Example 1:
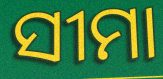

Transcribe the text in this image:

ସୀମା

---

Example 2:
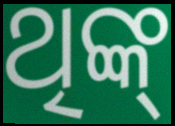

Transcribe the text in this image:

ଥିଙ୍କ୍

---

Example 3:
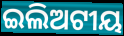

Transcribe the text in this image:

ଇଲିଅଟୀୟ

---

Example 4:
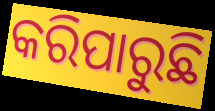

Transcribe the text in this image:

କରିପାରୁଛି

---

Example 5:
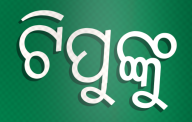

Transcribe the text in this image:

ଟିପୁଙ୍କୁ